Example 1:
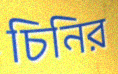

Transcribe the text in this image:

চিনির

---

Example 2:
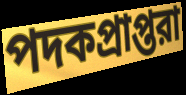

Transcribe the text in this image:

পদকপ্রাপ্তরা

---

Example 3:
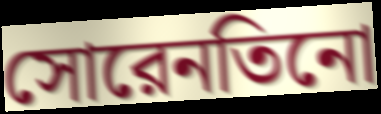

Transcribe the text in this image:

সোরেনতিনো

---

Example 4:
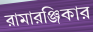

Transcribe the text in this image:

রামারঞ্জিকার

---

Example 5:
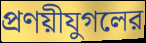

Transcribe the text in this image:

প্রণয়ীযুগলের